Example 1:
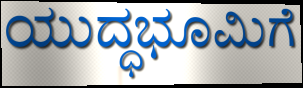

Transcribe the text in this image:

ಯುದ್ಧಭೂಮಿಗೆ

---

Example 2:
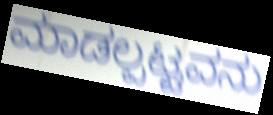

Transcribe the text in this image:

ಮಾಡಲ್ಪಟ್ಟವನು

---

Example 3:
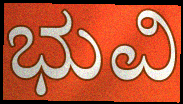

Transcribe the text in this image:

ಭುವಿ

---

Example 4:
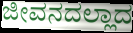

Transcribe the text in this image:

ಜೀವನದಲ್ಲಾದ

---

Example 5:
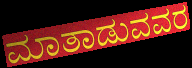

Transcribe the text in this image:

ಮಾತಾಡುವವರ